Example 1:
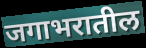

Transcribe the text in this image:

जगाभरातील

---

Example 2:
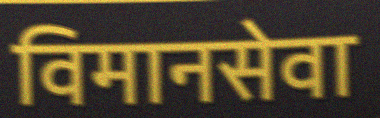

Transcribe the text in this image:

विमानसेवा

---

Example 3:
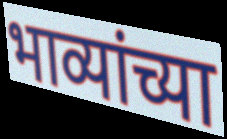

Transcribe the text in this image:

भाव्यांच्या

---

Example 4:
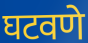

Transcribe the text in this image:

घटवणे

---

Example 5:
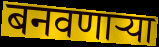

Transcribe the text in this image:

बनवणाऱ्या